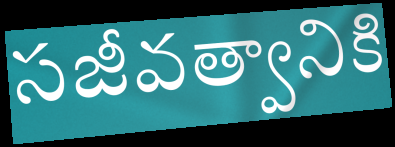
సజీవత్వానికి